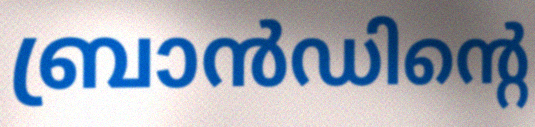
ബ്രാൻഡിന്റെ